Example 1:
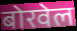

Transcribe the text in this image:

बोरवेल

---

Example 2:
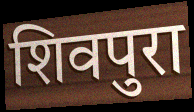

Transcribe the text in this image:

शिवपुरा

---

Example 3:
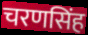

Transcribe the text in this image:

चरणसिंह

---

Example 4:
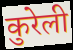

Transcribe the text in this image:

कुरेली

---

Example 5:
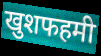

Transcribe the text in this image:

खुशफहमी